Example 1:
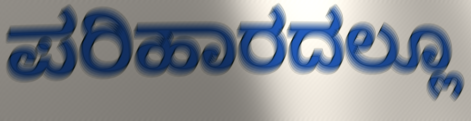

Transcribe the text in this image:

ಪರಿಹಾರದಲ್ಲೂ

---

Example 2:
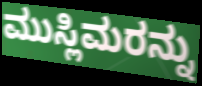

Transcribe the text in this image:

ಮುಸ್ಲಿಮರನ್ನು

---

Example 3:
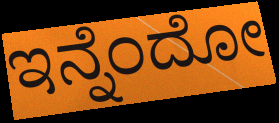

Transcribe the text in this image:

ಇನ್ನೆಂದೋ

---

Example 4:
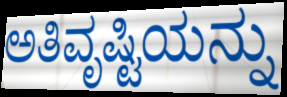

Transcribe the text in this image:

ಅತಿವೃಷ್ಟಿಯನ್ನು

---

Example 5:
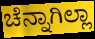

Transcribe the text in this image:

ಚೆನ್ನಾಗಿಲ್ಲಾ